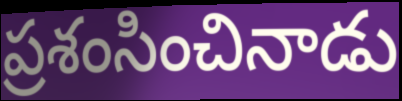
ప్రశంసించినాడు